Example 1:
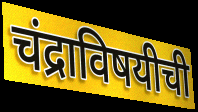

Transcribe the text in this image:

चंद्राविषयीची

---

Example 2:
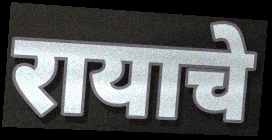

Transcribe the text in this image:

रायाचे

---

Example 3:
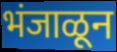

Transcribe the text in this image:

भंजाळून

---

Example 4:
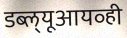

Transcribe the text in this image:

डब्ल्यूआयव्ही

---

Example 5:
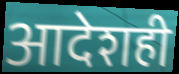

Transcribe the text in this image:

आदेशही